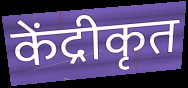
केंद्रीकृत